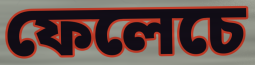
ফেলেচে